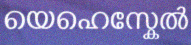
യെഹെസ്കേൽ